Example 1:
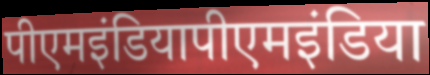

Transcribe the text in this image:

पीएमइंडियापीएमइंडिया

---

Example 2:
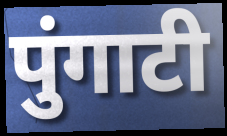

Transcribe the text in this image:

पुंगाटी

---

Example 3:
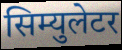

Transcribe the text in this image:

सिम्युलेटर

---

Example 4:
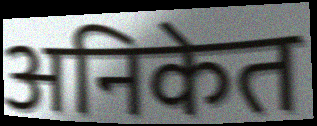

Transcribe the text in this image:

अनिकेत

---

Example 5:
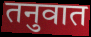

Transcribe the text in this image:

तनुवात